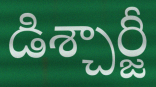
డిశ్చార్జీ